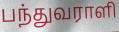
பந்துவராளி